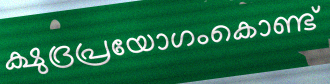
ക്ഷുദ്രപ്രയോഗംകൊണ്ട്